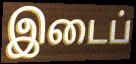
இடைப்